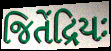
જિતેંદ્રિયઃ